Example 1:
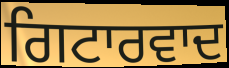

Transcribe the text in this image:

ਗਿਟਾਰਵਾਦ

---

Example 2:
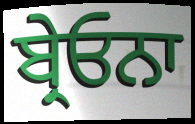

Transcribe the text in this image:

ਬ੍ਰੇਓਨਾ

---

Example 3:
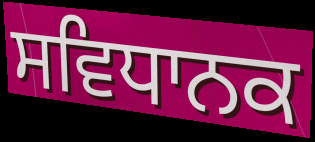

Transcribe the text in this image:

ਸਵਿਧਾਨਕ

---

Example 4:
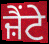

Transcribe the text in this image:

ਜ਼ੈਂਟੇ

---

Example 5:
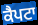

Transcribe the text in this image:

ਕੈਪਟਾ